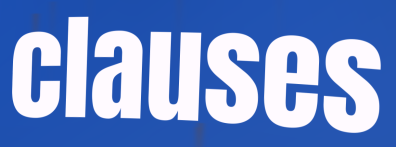
clauses